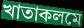
খাতাকলমে